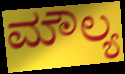
ಮೌಲ್ಯ